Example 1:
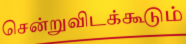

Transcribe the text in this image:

சென்றுவிடக்கூடும்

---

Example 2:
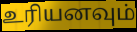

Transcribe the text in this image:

உரியனவும்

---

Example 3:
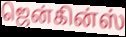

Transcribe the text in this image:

ஜென்கின்ஸ்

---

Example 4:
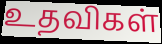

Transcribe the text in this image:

உதவிகள்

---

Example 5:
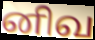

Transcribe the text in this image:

னிவ